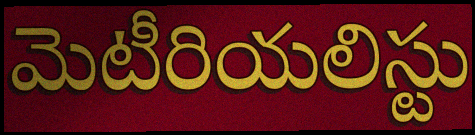
మెటీరియలిస్టు